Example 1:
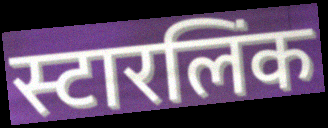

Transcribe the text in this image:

स्टारलिंक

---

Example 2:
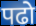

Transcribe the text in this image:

पढो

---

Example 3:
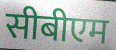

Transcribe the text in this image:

सीबीएम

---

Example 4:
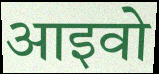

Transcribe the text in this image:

आइवो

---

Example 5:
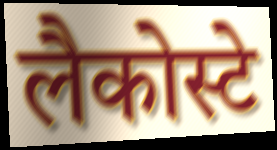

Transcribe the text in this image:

लैकोस्टे